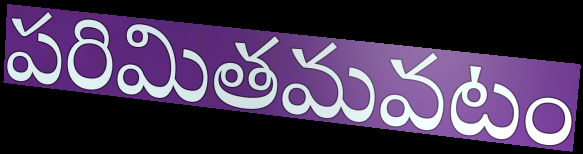
పరిమితమవటం